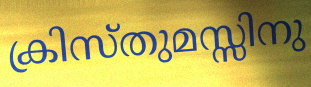
ക്രിസ്തുമസ്സിനു